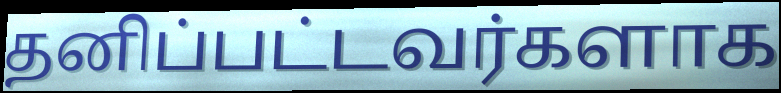
தனிப்பட்டவர்களாக